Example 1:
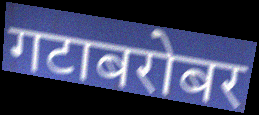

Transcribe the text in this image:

गटाबरोबर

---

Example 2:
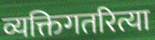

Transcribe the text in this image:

व्यक्तिगतरित्या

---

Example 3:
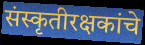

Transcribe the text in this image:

संस्कृतीरक्षकांचे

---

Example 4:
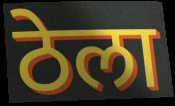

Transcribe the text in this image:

ठेला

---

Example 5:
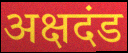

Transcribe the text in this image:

अक्षदंड